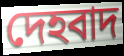
দেহবাদ